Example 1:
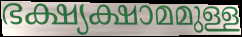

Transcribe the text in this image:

ഭക്ഷ്യക്ഷാമമുള്ള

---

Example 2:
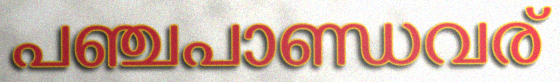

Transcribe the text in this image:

പഞ്ചപാണ്ഡവര്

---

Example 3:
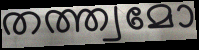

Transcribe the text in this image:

തത്ത്വമോ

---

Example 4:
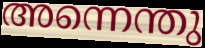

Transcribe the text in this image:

അന്നെന്തു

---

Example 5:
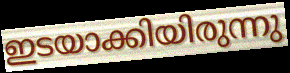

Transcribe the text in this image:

ഇടയാക്കിയിരുന്നു